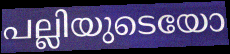
പല്ലിയുടെയോ